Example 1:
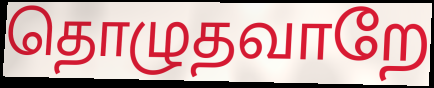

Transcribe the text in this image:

தொழுதவாறே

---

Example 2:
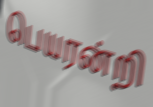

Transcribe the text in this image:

பெயரன்றி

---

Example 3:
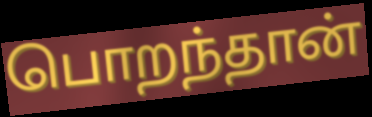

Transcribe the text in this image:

பொறந்தான்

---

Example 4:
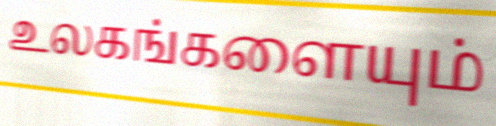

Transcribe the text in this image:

உலகங்களையும்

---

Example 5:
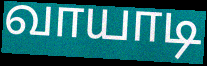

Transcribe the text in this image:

வாயாடி